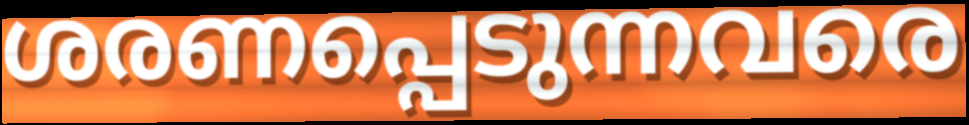
ശരണപ്പെടുന്നവരെ